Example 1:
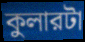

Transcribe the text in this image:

কুলারটা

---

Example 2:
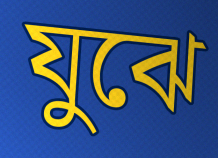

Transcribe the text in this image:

যুঝে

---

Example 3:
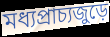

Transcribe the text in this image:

মধ্যপ্রাচ্যজুড়ে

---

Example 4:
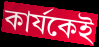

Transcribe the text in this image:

কার্যকেই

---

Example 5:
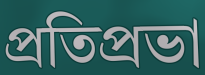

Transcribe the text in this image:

প্রতিপ্রভা